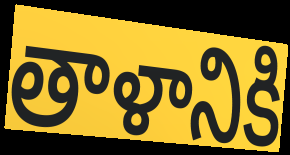
తాళానికి